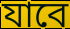
যাবে